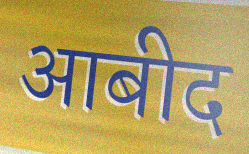
आबीद